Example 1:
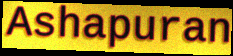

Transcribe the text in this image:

Ashapuran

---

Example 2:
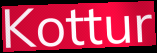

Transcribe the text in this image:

Kottur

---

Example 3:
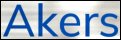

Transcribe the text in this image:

Akers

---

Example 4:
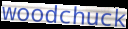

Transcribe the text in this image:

woodchuck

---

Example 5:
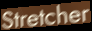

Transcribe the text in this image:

Stretcher